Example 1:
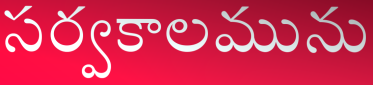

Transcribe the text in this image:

సర్వకాలమును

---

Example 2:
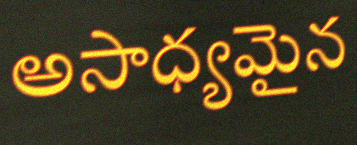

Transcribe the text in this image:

అసాధ్యమైన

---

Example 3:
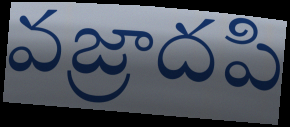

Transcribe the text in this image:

వజ్రాదపి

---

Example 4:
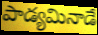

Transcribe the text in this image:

పాడ్యమినాడే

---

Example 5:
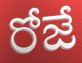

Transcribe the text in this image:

రోజే